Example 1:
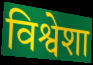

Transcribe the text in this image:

विश्वेशा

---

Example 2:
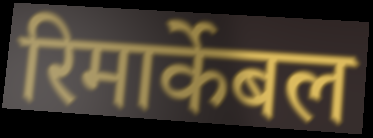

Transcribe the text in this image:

रिमार्केबल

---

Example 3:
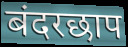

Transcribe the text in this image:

बंदरछाप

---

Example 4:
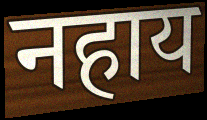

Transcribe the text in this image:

नहाय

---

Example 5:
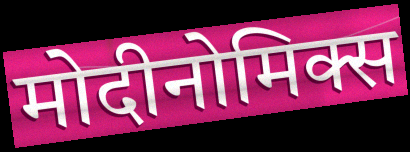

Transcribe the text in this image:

मोदीनोमिक्स